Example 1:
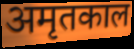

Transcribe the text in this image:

अमृतकाल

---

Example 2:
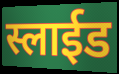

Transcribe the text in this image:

स्लाईड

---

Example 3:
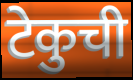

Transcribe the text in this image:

टेकुची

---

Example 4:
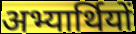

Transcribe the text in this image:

अभ्यार्थियों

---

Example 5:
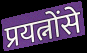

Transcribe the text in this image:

प्रयत्नोंसे